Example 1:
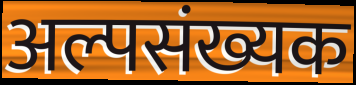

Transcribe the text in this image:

अल्‍पसंख्‍यक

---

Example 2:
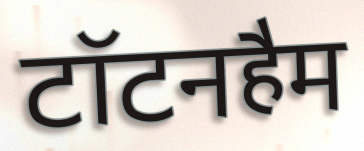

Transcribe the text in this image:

टॉटनहैम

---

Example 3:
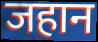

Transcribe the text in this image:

जहान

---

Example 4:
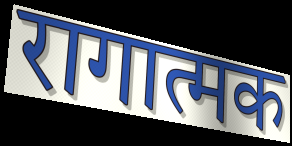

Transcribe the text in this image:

रागात्मक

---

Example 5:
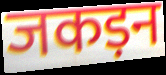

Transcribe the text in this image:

जकड़न